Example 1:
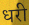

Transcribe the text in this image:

धरी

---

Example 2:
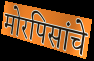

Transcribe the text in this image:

मोरपिसांचे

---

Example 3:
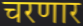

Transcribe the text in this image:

चरणार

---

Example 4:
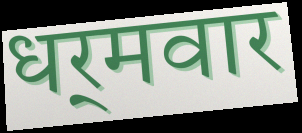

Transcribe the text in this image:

धर्मवार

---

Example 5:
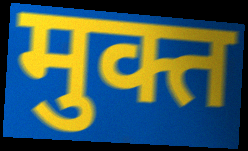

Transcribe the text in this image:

मुक्त